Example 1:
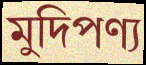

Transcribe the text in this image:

মুদিপণ্য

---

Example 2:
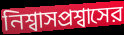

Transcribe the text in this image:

নিশ্বাসপ্রশ্বাসের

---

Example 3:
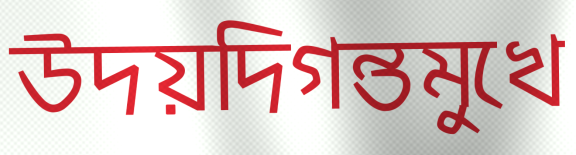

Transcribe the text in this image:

উদয়দিগন্তমুখে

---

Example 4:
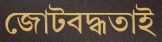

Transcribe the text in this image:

জোটবদ্ধতাই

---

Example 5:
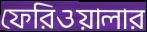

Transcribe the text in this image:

ফেরিওয়ালার